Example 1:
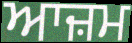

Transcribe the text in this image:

ਆਜ਼ਮ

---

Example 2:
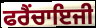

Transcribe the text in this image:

ਫਰੈਂਚਾਇਜੀ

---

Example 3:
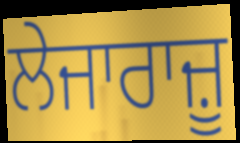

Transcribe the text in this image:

ਲੇਜਾਰਾਜ਼ੂ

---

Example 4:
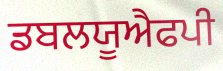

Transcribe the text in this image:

ਡਬਲਯੂਐਫਪੀ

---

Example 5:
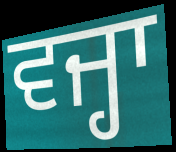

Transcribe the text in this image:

ਵਜ੍ਹਾ